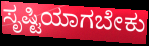
ಸೃಷ್ಟಿಯಾಗಬೇಕು